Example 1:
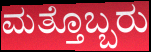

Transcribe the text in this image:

ಮತ್ತೊಬ್ಬರು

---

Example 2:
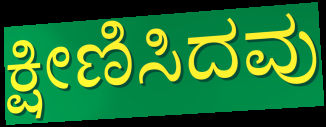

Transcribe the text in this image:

ಕ್ಷೀಣಿಸಿದವು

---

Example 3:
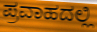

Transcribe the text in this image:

ಪ್ರವಾಹದಲ್ಲಿ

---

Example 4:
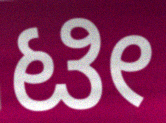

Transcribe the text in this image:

ಟೀ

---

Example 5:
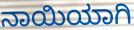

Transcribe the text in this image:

ನಾಯಿಯಾಗಿ